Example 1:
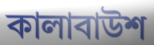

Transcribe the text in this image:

কালাবাউশ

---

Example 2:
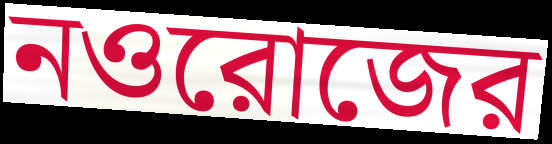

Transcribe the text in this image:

নওরোজের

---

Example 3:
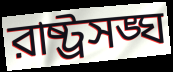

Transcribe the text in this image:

রাষ্ট্রসঙ্ঘ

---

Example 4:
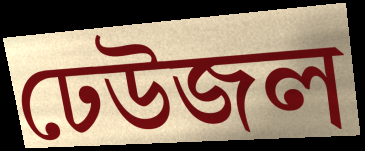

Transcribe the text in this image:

ঢেউজল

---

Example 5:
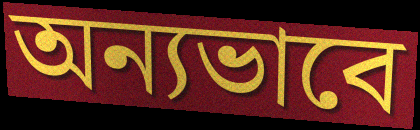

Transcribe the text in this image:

অন্যভাবে